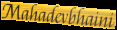
Mahadevbhaini